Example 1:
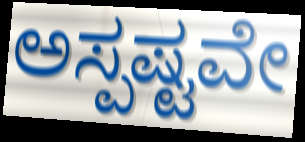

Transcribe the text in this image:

ಅಸ್ಪಷ್ಟವೇ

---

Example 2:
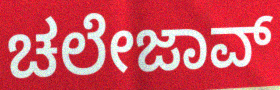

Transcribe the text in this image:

ಚಲೇಜಾವ್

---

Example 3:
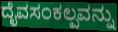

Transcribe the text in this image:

ದೈವಸಂಕಲ್ಪವನ್ನು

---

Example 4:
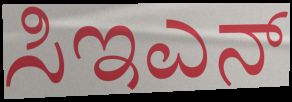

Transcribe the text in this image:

ಸಿಇಎನ್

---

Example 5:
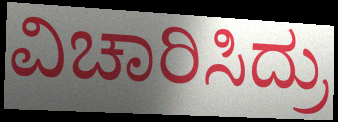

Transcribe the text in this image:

ವಿಚಾರಿಸಿದ್ರು